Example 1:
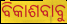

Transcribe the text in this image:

ବିକାଶବାବୁ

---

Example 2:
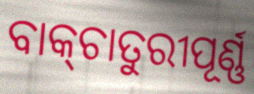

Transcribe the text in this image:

ବାକ୍‌ଚାତୁରୀପୂର୍ଣ୍ଣ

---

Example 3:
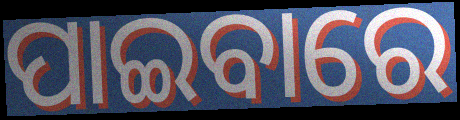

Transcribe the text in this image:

ପାଇବାରେ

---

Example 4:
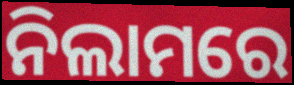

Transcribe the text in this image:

ନିଲାମରେ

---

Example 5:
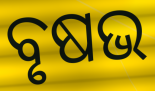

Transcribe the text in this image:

ବୃଷଭ